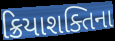
ક્રિયાશક્તિના